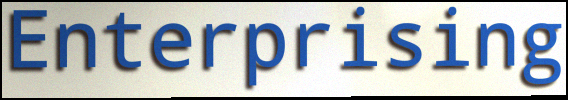
Enterprising